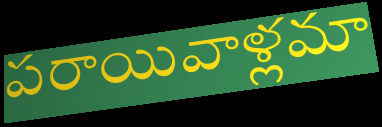
పరాయివాళ్లమా